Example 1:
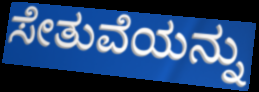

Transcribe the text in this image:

ಸೇತುವೆಯನ್ನು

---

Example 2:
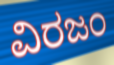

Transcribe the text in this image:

ವಿರಜಂ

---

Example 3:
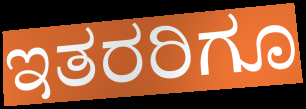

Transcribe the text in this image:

ಇತರರಿಗೂ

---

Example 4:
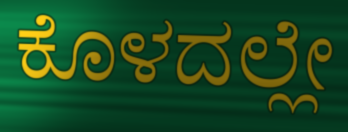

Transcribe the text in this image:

ಕೊಳದಲ್ಲೇ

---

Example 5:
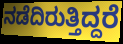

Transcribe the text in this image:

ನಡೆದಿರುತ್ತಿದ್ದರೆ